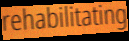
rehabilitating